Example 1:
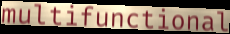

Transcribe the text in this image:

multifunctional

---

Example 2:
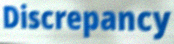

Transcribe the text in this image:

Discrepancy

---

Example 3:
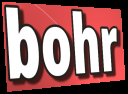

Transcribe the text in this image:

bohr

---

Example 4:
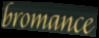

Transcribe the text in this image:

bromance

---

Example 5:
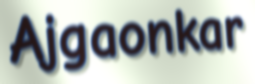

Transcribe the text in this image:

Ajgaonkar